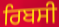
ਰਿਬਸੀ